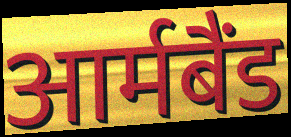
आर्मबैंड